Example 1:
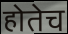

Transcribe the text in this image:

होतेच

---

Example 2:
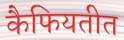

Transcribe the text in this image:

कैफियतीत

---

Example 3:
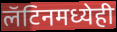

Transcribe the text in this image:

लॅटिनमध्येही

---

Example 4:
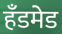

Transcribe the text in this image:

हॅंडमेड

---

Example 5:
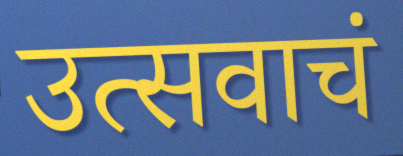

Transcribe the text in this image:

उत्सवाचं